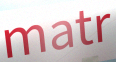
matr